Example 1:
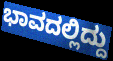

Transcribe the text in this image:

ಭಾವದಲ್ಲಿದ್ದು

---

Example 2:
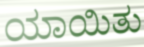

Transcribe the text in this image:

ಯಾಯಿತು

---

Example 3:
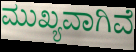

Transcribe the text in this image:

ಮುಖ್ಯವಾಗಿವೆ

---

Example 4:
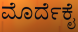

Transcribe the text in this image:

ಮೊರ್ದೆಕೈ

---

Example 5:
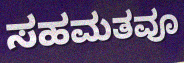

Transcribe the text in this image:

ಸಹಮತವೂ